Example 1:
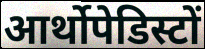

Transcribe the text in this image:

आर्थोपेडिस्टों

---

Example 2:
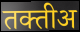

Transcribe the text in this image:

तक्तीअ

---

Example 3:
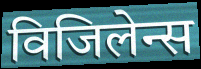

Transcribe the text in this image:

विजिलेन्स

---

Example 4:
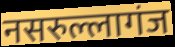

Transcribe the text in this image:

नसरुल्लागंज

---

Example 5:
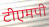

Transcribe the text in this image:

टीएमपी